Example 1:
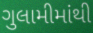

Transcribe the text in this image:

ગુલામીમાંથી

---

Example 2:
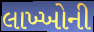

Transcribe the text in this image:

લાખ્ખોની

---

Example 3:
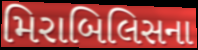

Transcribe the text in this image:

મિરાબિલિસના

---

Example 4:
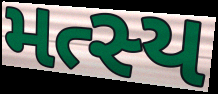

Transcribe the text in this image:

મત્સ્ય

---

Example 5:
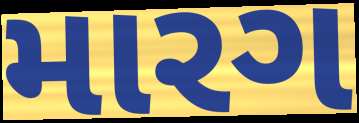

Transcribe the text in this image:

મારગ